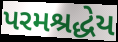
પરમશ્રદ્ધેય